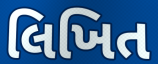
લિખિત